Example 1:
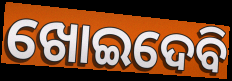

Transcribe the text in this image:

ଖୋଇଦେବି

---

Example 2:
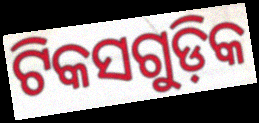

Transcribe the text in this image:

ଟିକସଗୁଡ଼ିକ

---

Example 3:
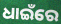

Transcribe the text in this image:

ଧାଇଁରେ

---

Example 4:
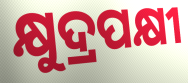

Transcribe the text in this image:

କ୍ଷୁଦ୍ରପକ୍ଷୀ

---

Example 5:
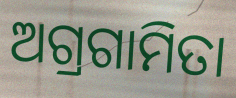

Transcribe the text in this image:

ଅଗ୍ରଗାମିତା